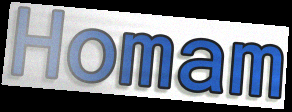
Homam